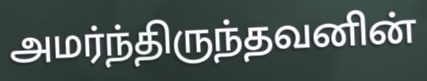
அமர்ந்திருந்தவனின்